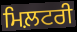
ਮਿਲ਼ਟਰੀ